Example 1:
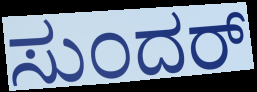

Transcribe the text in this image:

ಸುಂದರ್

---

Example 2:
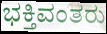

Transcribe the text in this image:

ಭಕ್ತಿವಂತರು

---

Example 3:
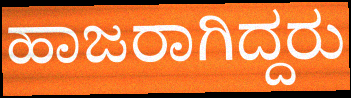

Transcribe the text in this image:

ಹಾಜರಾಗಿದ್ದರು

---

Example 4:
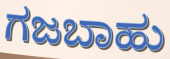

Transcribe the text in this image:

ಗಜಬಾಹು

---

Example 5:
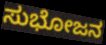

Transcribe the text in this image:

ಸುಭೋಜನ